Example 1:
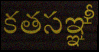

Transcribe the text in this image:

కతసఞ్ఞీ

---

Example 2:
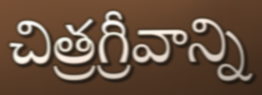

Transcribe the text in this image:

చిత్రగ్రీవాన్ని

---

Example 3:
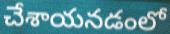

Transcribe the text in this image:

చేశాయనడంలో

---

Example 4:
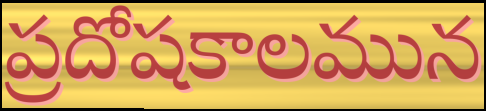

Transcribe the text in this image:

ప్రదోషకాలమున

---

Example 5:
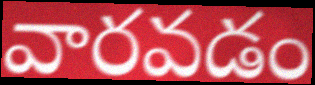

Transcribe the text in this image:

వారవడం